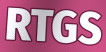
RTGS